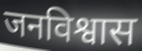
जनविश्वास